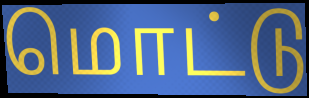
மொட்டு